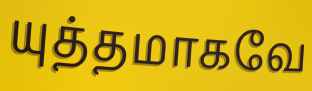
யுத்தமாகவே